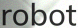
robot